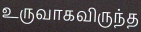
உருவாகவிருந்த